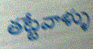
తట్టేవాళ్ళు